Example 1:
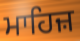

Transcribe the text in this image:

ਮਾਹਿਜ਼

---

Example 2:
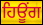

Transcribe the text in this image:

ਹਿਊੰਗ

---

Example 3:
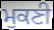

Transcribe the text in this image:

ਮੁਕਣੀ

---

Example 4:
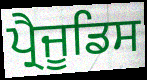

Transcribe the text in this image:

ਪ੍ਰੈਜੂਡਿਸ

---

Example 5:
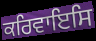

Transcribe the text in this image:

ਕਰਿਵਾਇਸਿ